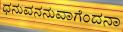
ಧನುವನನುವಾಗೆಂದನಾ